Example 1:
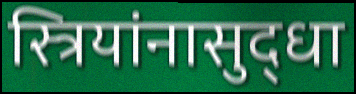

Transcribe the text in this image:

स्त्रियांनासुद्धा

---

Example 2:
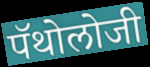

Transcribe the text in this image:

पॅथोलोजी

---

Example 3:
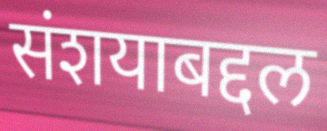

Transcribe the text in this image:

संशयाबद्दल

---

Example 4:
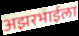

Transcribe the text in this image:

अझरभाईला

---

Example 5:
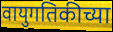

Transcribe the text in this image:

वायुगतिकीच्या